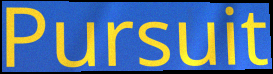
Pursuit